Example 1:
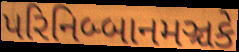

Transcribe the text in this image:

પરિનિબ્બાનમઞ્ચકે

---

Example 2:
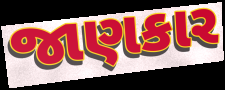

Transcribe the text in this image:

જાણકાર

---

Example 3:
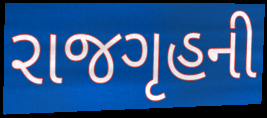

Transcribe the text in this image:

રાજગૃહની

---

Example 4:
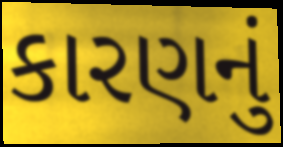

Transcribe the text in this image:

કારણનું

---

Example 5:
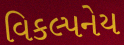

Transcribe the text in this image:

વિકલ્પનેય